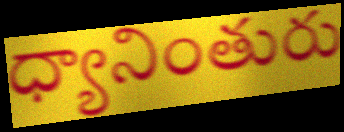
ధ్యానింతురు